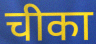
चीका